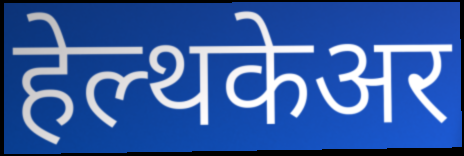
हेल्थकेअर